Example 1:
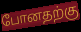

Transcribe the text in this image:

போனதற்கு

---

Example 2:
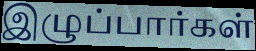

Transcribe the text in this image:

இழுப்பார்கள்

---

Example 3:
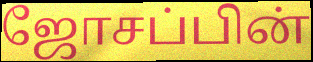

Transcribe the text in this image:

ஜோசப்பின்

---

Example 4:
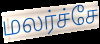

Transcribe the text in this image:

மலர்ச்சே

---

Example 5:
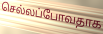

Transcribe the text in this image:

செல்லப்போவதாக